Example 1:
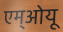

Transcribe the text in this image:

एम्ओयू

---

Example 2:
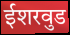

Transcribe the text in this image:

ईशरवुड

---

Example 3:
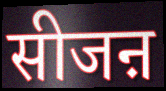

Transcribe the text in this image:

सीजऩ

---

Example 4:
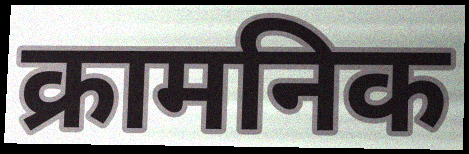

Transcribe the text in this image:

क्रामनिक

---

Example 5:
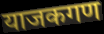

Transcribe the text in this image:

याजकगण